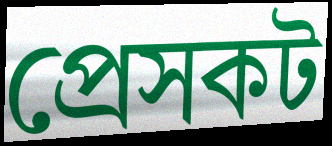
প্রেসকট